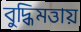
বুদ্ধিমত্তায়